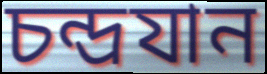
চন্দ্রযান